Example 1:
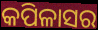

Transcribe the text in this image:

କପିଳାସର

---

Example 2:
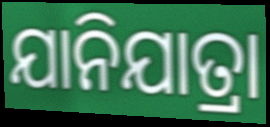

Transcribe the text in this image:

ଯାନିଯାତ୍ରା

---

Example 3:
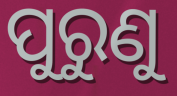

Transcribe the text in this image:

ପୁରୁଣୁ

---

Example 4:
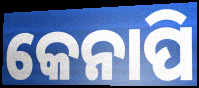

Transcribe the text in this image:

କେନାପି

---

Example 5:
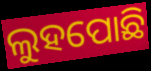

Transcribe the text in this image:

ଲୁହପୋଛି